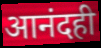
आनंदही